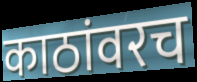
काठांवरच